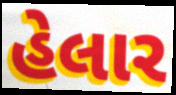
હેલાર